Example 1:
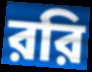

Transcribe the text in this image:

ররি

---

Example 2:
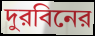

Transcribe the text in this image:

দুরবিনের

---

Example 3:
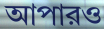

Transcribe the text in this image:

আপারও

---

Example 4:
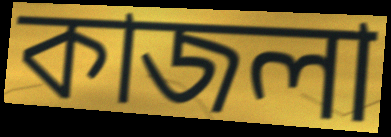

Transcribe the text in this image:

কাজলা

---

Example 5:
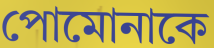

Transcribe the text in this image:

পোমোনাকে